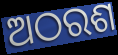
ଅଠରଶ